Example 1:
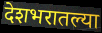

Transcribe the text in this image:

देशभरातल्या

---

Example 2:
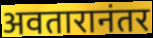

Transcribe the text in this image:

अवतारानंतर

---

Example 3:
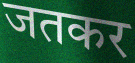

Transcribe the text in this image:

जतकर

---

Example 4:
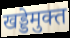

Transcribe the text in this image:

खड्डेमुक्त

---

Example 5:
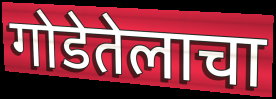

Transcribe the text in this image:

गोडेतेलाचा